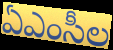
ఏఎంసీల